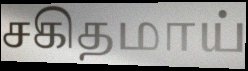
சகிதமாய்